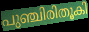
പുഞ്ചിരിതൂകി